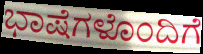
ಭಾಷೆಗಳೊಂದಿಗೆ